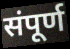
संपूर्ण